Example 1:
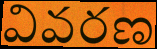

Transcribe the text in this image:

వివరణ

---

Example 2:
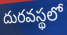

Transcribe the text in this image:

దురవస్థలో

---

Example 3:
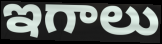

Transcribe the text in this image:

ఇగాలు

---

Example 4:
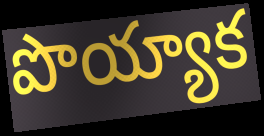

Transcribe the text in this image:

పొయ్యాక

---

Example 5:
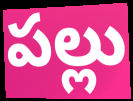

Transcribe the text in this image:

పల్లు